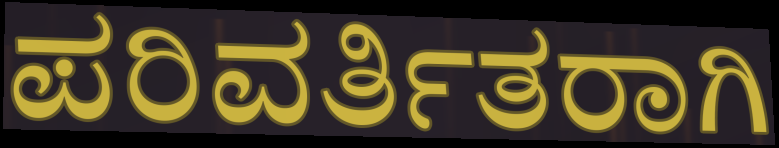
ಪರಿವರ್ತಿತರಾಗಿ